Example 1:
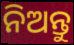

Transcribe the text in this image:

ନିଅନ୍ତୁ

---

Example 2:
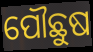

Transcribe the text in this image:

ପୌଛୁଷ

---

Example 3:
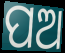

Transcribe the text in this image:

ପଅ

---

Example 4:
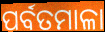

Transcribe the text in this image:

ପର୍ବତମାଳା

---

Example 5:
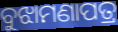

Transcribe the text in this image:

ବୁଝାମଣାପତ୍ର